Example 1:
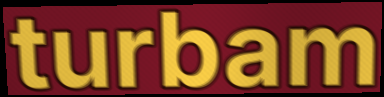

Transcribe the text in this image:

turbam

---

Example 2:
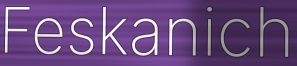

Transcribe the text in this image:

Feskanich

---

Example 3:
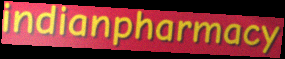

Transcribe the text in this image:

indianpharmacy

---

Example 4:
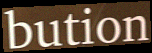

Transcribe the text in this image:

bution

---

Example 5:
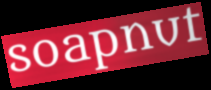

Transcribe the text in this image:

soapnut